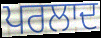
ਪਰਲਾਦ